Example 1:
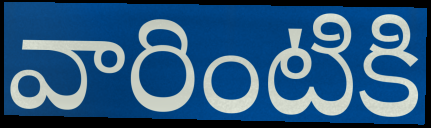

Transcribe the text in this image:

వారింటికి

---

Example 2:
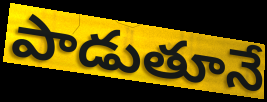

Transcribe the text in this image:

పాడుతూనే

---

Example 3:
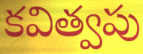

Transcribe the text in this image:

కవిత్వపు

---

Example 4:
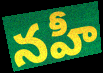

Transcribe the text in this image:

నహీ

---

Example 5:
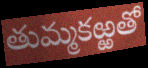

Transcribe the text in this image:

తుమ్మకఱ్ఱతో